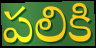
పలికి